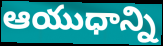
ఆయుధాన్ని